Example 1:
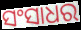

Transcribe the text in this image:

ସଂସାଧର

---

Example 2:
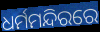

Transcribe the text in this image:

ଧର୍ମମନ୍ଦିରରେ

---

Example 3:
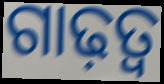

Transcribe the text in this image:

ଗାଢ଼ତ୍ବ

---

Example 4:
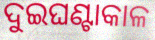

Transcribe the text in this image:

ଦୁଇଘଣ୍ଟାକାଳ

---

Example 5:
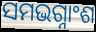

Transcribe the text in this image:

ସମଭଗ୍ନାଂଶ